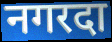
नगरदा